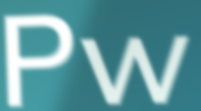
Pw